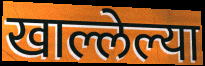
खाल्लेल्या